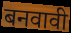
बनवावी